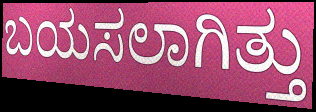
ಬಯಸಲಾಗಿತ್ತು